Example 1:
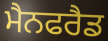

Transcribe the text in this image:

ਮੈਨਫਰੈਡ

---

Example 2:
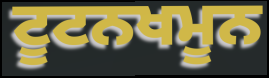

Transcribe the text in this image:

ਟੂਟਨਖਮੂਨ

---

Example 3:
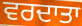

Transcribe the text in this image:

ਵਰਦਾਤਾ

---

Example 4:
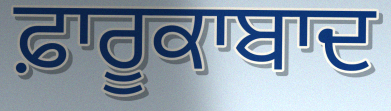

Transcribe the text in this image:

ਫ਼ਾਰੂਕਾਬਾਦ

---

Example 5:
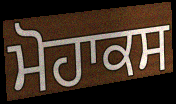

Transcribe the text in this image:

ਮੋਹਾਕਸ